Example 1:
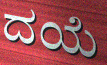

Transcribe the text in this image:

ದಯೆ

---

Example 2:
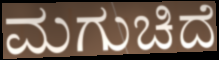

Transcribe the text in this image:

ಮಗುಚಿದೆ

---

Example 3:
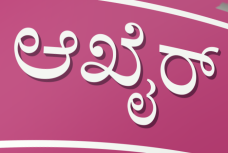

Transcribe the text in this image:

ಆಖೈರ್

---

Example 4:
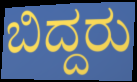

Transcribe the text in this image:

ಬಿದ್ದರು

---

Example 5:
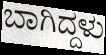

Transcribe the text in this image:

ಬಾಗಿದ್ದಳು